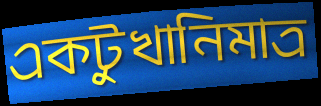
একটুখানিমাত্র